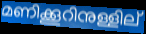
മണിക്കൂറിനുള്ളില്